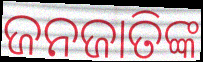
ଜନଜାତିଙ୍କ